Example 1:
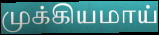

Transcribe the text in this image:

முக்கியமாய்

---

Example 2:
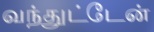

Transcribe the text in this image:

வந்துட்டேன்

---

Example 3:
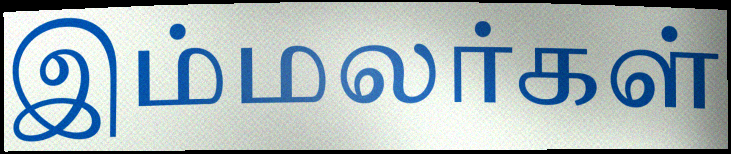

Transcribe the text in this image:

இம்மலர்கள்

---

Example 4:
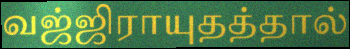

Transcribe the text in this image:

வஜ்ஜிராயுதத்தால்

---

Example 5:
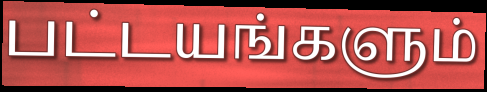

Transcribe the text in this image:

பட்டயங்களும்